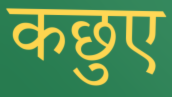
कछुए